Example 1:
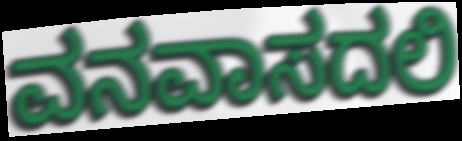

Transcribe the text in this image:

ವನವಾಸದಲಿ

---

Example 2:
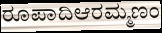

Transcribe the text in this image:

ರೂಪಾದಿಆರಮ್ಮಣಂ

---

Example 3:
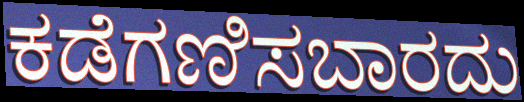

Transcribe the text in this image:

ಕಡೆಗಣಿಸಬಾರದು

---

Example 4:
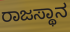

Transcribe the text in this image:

ರಾಜಸ್ಥಾನ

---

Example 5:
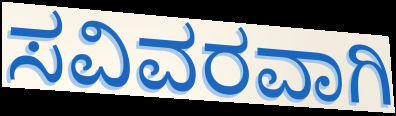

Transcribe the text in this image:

ಸವಿವರವಾಗಿ